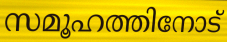
സമൂഹത്തിനോട്